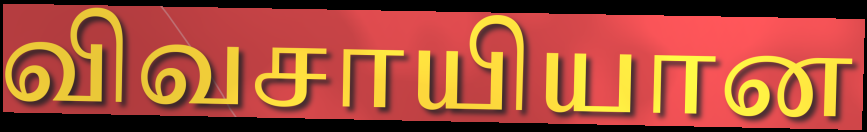
விவசாயியான